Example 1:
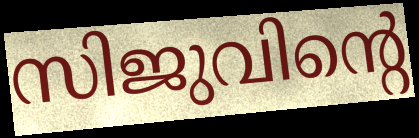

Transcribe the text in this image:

സിജുവിന്റെ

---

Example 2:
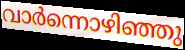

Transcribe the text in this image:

വാർന്നൊഴിഞ്ഞു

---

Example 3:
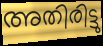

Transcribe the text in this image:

അതിരിട്ടു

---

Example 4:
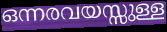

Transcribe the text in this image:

ഒന്നരവയസ്സുള്ള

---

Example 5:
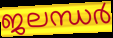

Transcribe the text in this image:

ജലന്ധർ